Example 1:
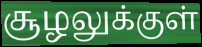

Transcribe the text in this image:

சூழலுக்குள்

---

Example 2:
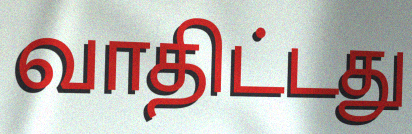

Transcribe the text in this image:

வாதிட்டது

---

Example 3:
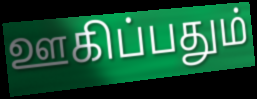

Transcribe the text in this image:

ஊகிப்பதும்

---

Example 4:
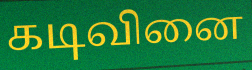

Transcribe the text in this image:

கடிவினை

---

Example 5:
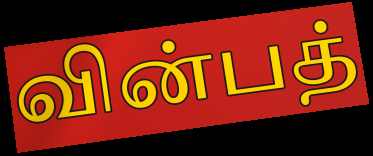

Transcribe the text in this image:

வின்பத்